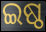
ଇଷ୍ଠ